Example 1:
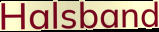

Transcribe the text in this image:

Halsband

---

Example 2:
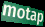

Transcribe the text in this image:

motap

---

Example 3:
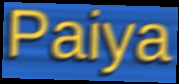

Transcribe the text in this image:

Paiya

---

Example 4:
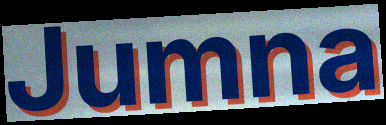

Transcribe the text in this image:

Jumna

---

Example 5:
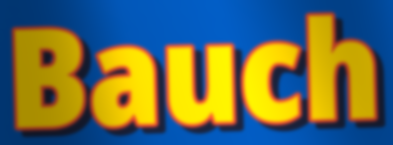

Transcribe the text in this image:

Bauch